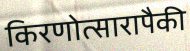
किरणोत्सारापैकी